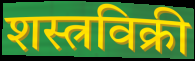
शस्त्रविक्री